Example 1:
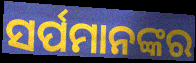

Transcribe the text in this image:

ସର୍ପମାନଙ୍କର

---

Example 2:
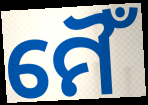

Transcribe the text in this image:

ମୈଁ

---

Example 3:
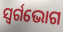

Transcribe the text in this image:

ସ୍ୱର୍ଗଭୋଗ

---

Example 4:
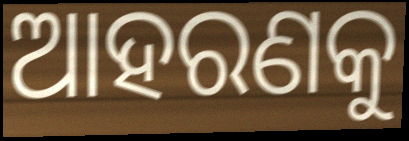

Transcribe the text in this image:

ଆହରଣକୁ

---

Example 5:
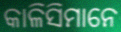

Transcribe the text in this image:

କାଳିସିମାନେ